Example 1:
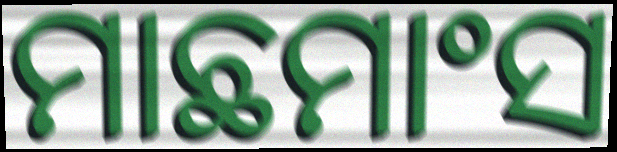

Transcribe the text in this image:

ମାଛମାଂସ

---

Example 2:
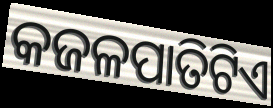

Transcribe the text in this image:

କଜଳପାତିଟିଏ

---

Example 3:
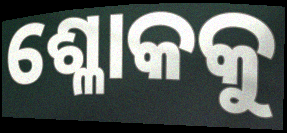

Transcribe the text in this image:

ଶ୍ଳୋକକୁ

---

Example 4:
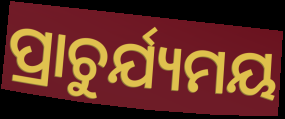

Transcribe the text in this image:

ପ୍ରାଚୁର୍ଯ୍ୟମୟ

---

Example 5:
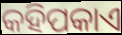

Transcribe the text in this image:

କହିପକାଏ